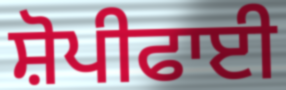
ਸ਼ੋਪੀਫਾਈ